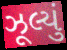
ઝૂલ્યું